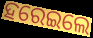
ହରେଇଲେ